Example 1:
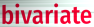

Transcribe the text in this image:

bivariate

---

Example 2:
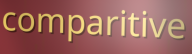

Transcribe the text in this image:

comparitive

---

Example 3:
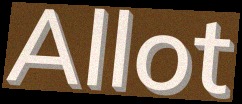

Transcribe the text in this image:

Allot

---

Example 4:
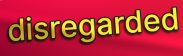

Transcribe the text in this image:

disregarded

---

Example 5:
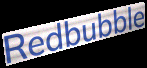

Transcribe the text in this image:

Redbubble